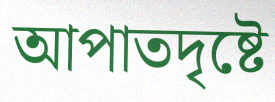
আপাতদৃষ্টে